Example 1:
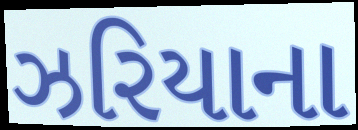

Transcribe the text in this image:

ઝરિયાના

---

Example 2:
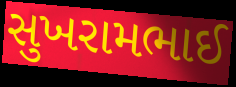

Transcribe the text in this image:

સુખરામભાઈ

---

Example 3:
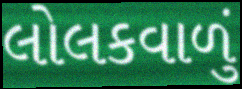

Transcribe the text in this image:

લોલકવાળું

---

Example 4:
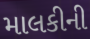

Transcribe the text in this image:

માલકીની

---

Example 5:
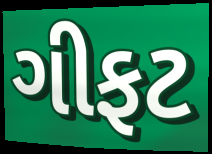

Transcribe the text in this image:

ગીફટ